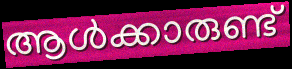
ആൾക്കാരുണ്ട്